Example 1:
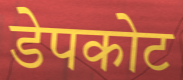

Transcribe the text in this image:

डेपकोट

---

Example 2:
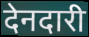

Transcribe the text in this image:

देनदारी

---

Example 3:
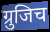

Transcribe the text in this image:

ग्रुजिच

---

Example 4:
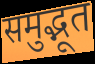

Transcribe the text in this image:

समुद्भूत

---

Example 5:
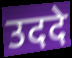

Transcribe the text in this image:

उददे